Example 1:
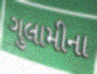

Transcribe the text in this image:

ગુલામીના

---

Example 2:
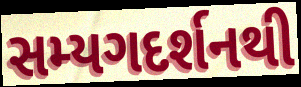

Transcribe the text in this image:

સમ્યગદર્શનથી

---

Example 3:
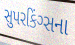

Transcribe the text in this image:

સુપરકિંગ્સના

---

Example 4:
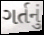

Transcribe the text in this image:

ગર્તનું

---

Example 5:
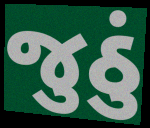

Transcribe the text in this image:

જુઠું